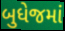
બુધેજમાં